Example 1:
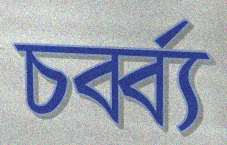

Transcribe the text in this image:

চর্ব্ব্য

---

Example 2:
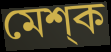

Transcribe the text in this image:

মেশ্ক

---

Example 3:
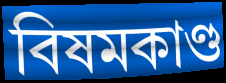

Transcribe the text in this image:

বিষমকাণ্ড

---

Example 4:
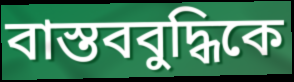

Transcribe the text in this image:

বাস্তববুদ্ধিকে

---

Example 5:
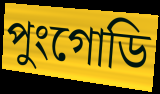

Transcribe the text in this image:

পুংগোডি